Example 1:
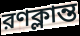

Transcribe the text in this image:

রণক্লান্ত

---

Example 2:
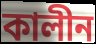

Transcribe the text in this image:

কালীন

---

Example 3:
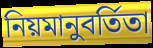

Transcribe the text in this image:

নিয়মানুবর্তিতা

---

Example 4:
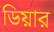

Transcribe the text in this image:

ডিয়ার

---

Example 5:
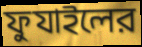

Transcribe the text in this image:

ফুযাইলের